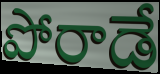
పోరాడే